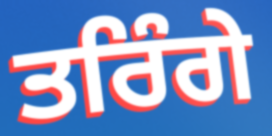
ਤਰਿੰਗੇ